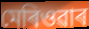
মেৰিওৱাৰ